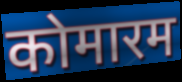
कोमारम